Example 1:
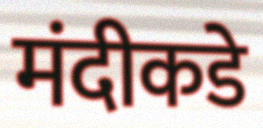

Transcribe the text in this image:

मंदीकडे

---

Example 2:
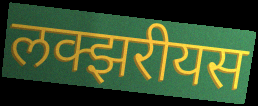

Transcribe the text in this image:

लक्झरीयस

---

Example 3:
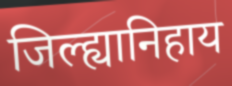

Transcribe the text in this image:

जिल्ह्यानिहाय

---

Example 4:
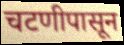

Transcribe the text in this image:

चटणीपासून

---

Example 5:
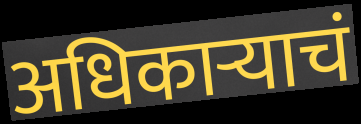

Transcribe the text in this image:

अधिकाऱ्याचं